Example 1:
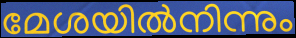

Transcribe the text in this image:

മേശയിൽനിന്നും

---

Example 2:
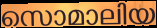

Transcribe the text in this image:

സൊമാലിയ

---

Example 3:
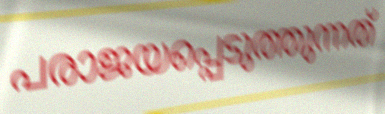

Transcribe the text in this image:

പരാജയപ്പെടുത്തുന്നത്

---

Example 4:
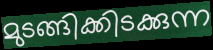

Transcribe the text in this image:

മുടങ്ങിക്കിടക്കുന്ന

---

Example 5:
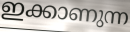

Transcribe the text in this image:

ഇക്കാണുന്ന